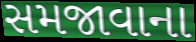
સમજાવાના